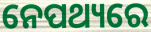
ନେପଥ୍ୟରେ